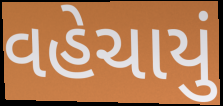
વહેચાયું